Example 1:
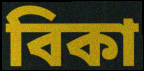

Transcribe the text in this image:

বিকা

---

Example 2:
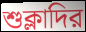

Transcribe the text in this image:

শুক্লাদির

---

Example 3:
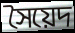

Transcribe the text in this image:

সৈয়েদ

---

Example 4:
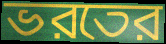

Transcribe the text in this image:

ভরতের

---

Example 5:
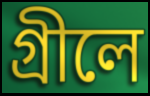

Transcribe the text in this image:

গ্রীলে